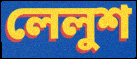
লেলুশ